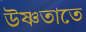
উষ্ণতাতে